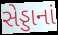
સેડ્ડાનાં